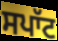
ਸਪਾੱਟ